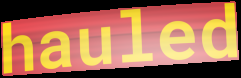
hauled